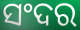
ସଂଦର